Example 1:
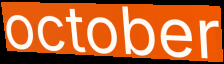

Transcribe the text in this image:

october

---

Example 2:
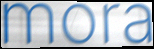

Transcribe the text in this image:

mora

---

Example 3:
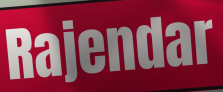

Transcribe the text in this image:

Rajendar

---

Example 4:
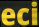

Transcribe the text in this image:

eci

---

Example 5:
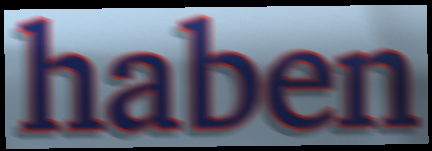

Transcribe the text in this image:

haben